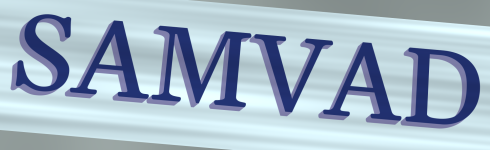
SAMVAD